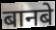
बानबे